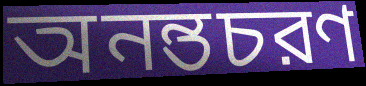
অনন্তচরণ